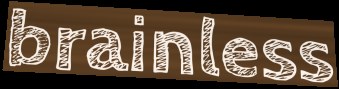
brainless